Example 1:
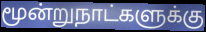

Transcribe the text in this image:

மூன்றுநாட்களுக்கு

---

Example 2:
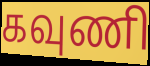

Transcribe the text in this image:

கவுணி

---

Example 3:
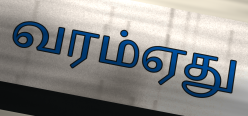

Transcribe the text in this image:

வரம்ஏது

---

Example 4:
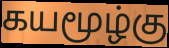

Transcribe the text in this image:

கயமூழ்கு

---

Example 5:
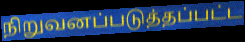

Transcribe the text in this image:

நிறுவனப்படுத்தப்பட்ட